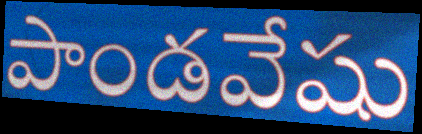
పాండవేషు